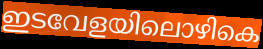
ഇടവേളയിലൊഴികെ